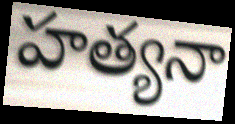
హత్యనా